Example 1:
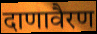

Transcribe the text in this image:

दाणावैरण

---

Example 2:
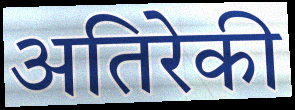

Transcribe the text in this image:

अतिरेकी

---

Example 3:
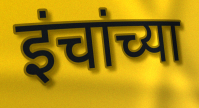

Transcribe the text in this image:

इंचांच्या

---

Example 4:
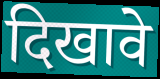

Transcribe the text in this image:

दिखावे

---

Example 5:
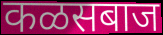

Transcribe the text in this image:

कळसबाज